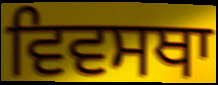
ਵਿਵਸਥਾ